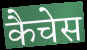
कैचेस